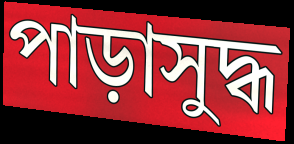
পাড়াসুদ্ধ